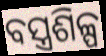
ବସ୍ତ୍ରଶିଳ୍ପ